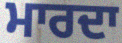
ਮਾਰਦਾ